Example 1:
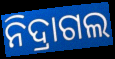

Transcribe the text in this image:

ନିଦ୍ରାଗଲ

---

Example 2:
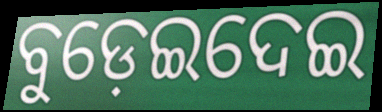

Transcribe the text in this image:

ବୁଡ଼େଇଦେଇ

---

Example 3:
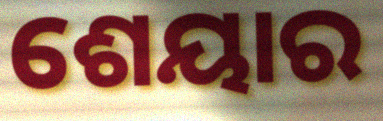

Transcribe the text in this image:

ଶେୟାର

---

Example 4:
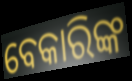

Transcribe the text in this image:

ବେକାରିଙ୍କ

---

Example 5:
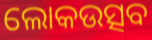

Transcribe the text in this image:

ଲୋକଉତ୍ସବ